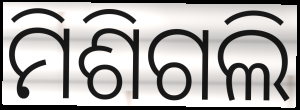
ମିଶିଗଲି